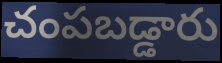
చంపబడ్డారు